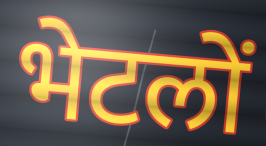
भेटलों